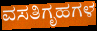
ವಸತಿಗೃಹಗಳ